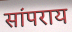
सांपराय